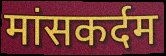
मांसकर्दम